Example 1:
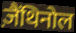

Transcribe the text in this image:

ज़ैंथिनोल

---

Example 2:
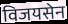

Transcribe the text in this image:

विजयसेन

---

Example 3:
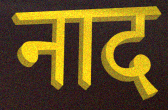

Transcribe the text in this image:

नाद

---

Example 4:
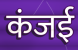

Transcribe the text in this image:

कंजई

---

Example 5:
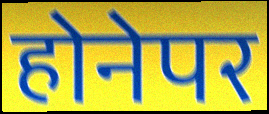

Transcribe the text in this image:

होनेपर